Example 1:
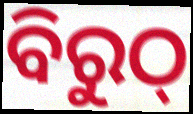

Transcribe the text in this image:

ବିରୁଠ୍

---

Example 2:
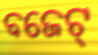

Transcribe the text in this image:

ବଜେଟ୍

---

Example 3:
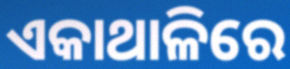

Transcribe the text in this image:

ଏକାଥାଳିରେ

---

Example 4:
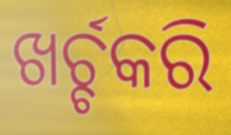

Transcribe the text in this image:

ଖର୍ଚ୍ଚକରି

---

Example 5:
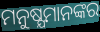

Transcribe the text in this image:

ମନୁଷ୍ଯମାନଙ୍କର